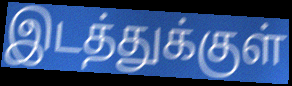
இடத்துக்குள்